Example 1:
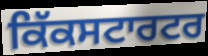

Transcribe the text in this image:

ਕਿੱਕਸਟਾਰਟਰ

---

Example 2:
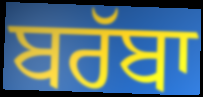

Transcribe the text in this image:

ਬਰੱਬਾ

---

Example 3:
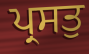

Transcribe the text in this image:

ਪ੍ਰਸਤੁ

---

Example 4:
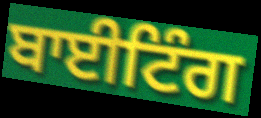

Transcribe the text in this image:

ਬਾਈਟਿੰਗ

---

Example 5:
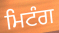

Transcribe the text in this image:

ਮਿਟੰਗ